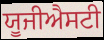
ਯੂਜੀਐਸਟੀ